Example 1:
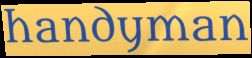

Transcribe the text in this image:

handyman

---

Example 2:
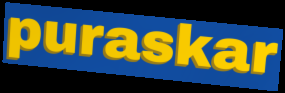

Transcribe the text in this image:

puraskar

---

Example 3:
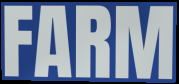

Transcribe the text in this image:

FARM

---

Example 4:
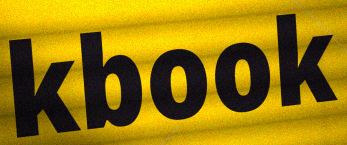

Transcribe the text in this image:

kbook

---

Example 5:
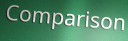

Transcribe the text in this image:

Comparison